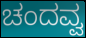
ಚಂದವ್ವ